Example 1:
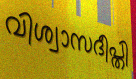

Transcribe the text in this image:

വിശ്വാസദീപ്തി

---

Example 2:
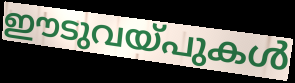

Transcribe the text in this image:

ഈടുവയ്പുകൾ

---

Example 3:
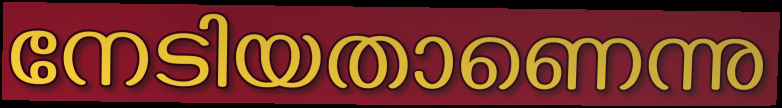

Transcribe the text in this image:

നേടിയതാണെന്നു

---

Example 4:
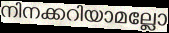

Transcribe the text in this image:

നിനക്കറിയാമല്ലോ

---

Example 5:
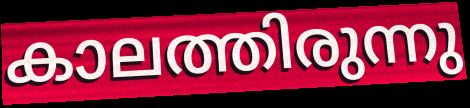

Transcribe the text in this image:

കാലത്തിരുന്നു